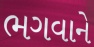
ભગવાને